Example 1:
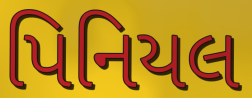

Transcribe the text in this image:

પિનિયલ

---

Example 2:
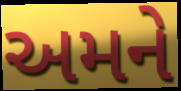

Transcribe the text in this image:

અમને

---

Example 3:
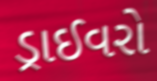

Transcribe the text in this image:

ડ્રાઈવરો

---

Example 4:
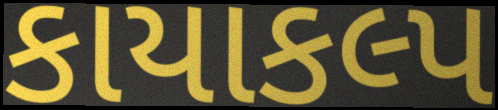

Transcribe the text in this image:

કાયાકલ્પ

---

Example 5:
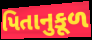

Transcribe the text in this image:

પિતાનુકૂળ